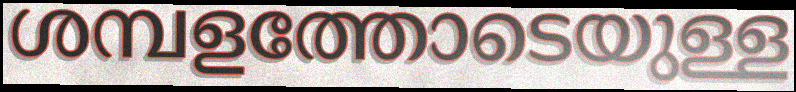
ശമ്പളത്തോടെയുള്ള